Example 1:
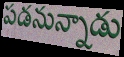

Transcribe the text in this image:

పడనున్నాడు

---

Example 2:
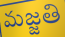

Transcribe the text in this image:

మజ్జతి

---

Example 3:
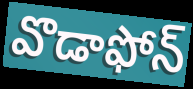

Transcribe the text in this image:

వొడాఫోన్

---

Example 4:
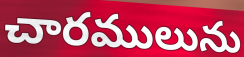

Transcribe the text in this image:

చారములును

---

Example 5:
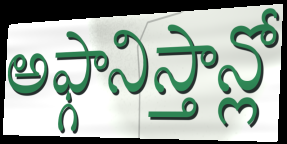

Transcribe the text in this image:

అఫ్గానిస్తాన్లో